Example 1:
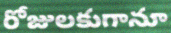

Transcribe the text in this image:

రోజులకుగానూ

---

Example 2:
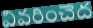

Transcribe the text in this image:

వివరించెద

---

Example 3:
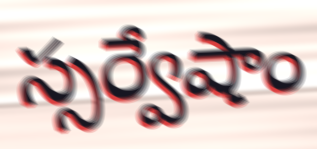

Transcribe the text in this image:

స్సర్వేషాం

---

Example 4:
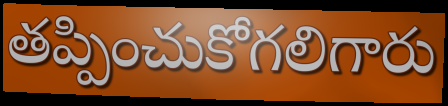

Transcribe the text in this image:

తప్పించుకోగలిగారు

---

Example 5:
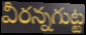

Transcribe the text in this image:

వీరన్నగుట్ట